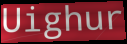
Uighur